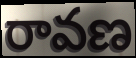
రావణ